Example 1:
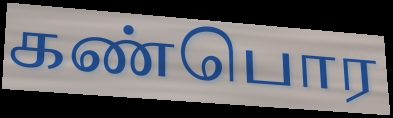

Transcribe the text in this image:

கண்பொர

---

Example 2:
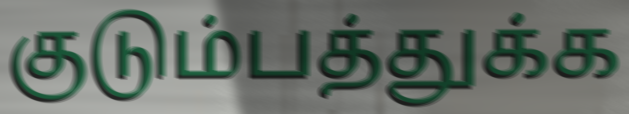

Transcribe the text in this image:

குடும்பத்துக்க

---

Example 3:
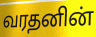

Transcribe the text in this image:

வரதனின்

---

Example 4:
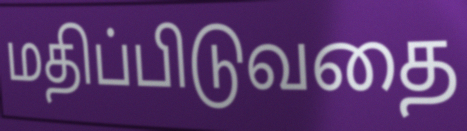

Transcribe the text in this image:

மதிப்பிடுவதை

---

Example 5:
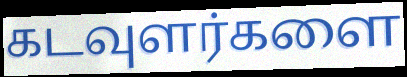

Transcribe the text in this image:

கடவுளர்களை